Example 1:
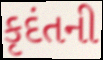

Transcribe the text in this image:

કૃદંતની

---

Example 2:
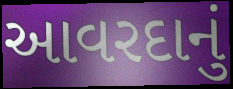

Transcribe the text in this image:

આવરદાનું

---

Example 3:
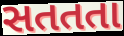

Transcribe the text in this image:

સતતતા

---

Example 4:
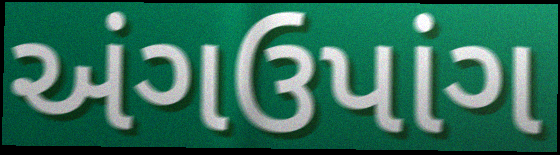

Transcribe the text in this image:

અંગઉપાંગ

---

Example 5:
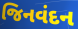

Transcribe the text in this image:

જિનવંદન